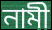
নামী